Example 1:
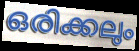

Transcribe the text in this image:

ഒരിക്കലും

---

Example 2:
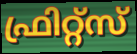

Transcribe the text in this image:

ഫ്രിറ്റ്സ്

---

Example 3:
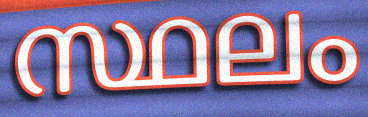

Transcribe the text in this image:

സ്ഥലം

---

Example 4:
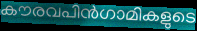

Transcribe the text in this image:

കൗരവപിൻഗാമികളുടെ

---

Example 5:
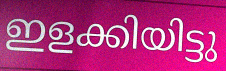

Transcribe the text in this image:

ഇളക്കിയിട്ടു